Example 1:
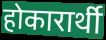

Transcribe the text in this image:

होकारार्थी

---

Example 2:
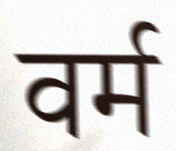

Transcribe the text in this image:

वर्म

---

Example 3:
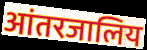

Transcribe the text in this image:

आंतरजालिय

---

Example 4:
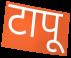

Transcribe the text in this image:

टापू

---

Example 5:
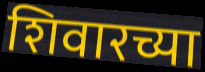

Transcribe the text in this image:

शिवारच्या